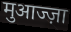
मुआज्ज़ा